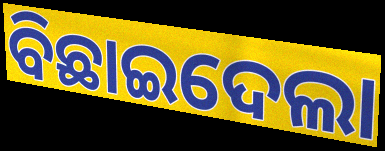
ବିଛାଇଦେଲା